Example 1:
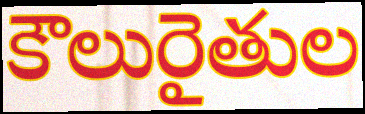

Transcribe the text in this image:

కౌలురైతుల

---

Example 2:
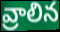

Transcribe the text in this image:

వ్రాలిన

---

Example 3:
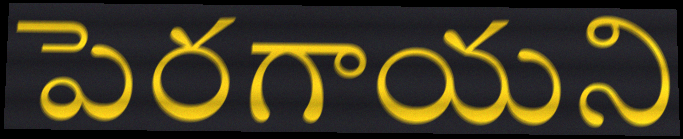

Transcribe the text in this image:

పెరగాయని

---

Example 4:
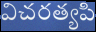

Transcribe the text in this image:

విచరత్యపి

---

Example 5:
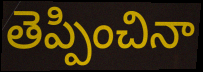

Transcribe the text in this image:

తెప్పించినా